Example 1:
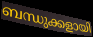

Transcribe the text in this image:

ബന്ധുക്കളായി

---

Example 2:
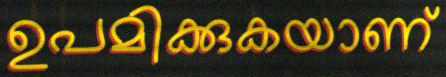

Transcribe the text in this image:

ഉപമിക്കുകയാണ്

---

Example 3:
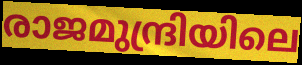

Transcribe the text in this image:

രാജമുന്ദ്രിയിലെ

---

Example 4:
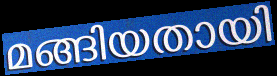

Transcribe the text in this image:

മങ്ങിയതായി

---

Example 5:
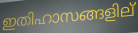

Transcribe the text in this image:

ഇതിഹാസങ്ങളില്